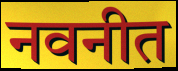
नवनीत